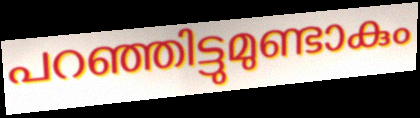
പറഞ്ഞിട്ടുമുണ്ടാകും